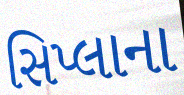
સિપ્લાના